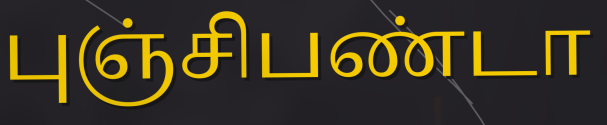
புஞ்சிபண்டா